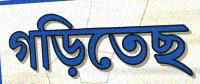
গড়িতেছ